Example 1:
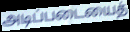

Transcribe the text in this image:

அடிப்படையைத்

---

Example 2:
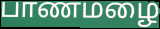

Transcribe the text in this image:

பாணமழை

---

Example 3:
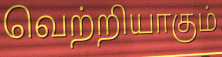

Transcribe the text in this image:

வெற்றியாகும்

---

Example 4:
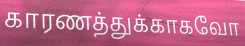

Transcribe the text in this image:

காரணத்துக்காகவோ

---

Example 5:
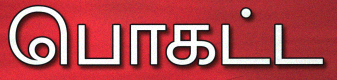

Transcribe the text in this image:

பொகட்ட